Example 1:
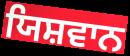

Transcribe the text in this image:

ਯਿਸ਼ਵਾਨ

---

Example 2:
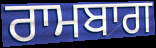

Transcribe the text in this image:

ਰਾਮਬਾਗ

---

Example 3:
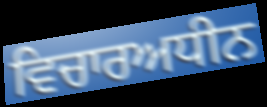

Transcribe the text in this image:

ਵਿਚਾਰਅਧੀਨ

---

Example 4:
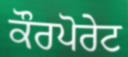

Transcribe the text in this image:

ਕੌਰਪੋਰੇਟ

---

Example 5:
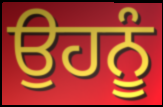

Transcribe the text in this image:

ਉਹਨੂੰ